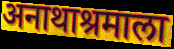
अनाथाश्रमाला